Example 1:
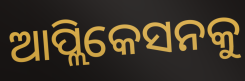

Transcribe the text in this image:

ଆପ୍ଲିକେସନକୁ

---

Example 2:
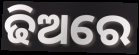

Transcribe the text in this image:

ଢିଅରେ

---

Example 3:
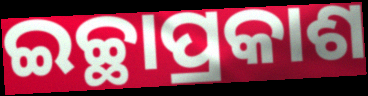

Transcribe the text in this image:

ଇଚ୍ଛାପ୍ରକାଶ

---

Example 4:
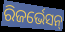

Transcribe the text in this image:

ରିଜର୍ଭେସନ୍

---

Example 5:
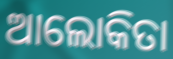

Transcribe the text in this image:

ଆଲୋକିତା